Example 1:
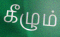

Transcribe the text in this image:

கீழும்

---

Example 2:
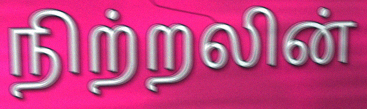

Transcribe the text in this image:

நிற்றலின்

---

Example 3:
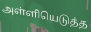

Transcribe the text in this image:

அள்ளியெடுத்த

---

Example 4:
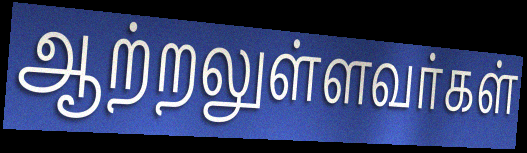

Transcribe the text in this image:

ஆற்றலுள்ளவர்கள்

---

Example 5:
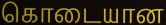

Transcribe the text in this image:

கொடையான